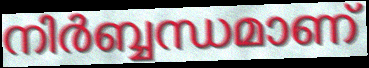
നിർബ്ബന്ധമാണ്